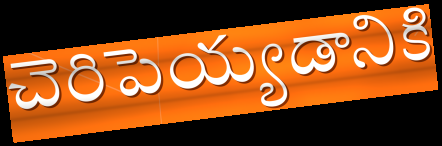
చెరిపెయ్యడానికి